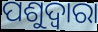
ପଶୁଦ୍ୱାରା